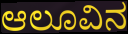
ಆಲೂವಿನ